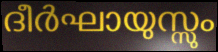
ദീർഘായുസ്സും